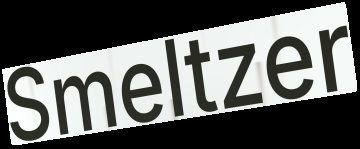
Smeltzer